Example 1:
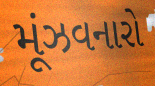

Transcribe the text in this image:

મૂંઝવનારો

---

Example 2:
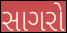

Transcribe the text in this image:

સાગરો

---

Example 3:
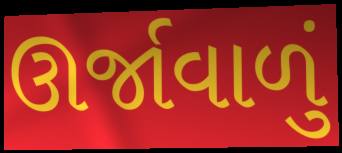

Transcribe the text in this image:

ઊર્જાવાળું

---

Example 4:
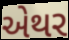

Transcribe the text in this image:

એથર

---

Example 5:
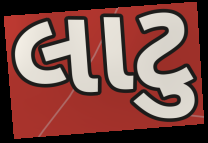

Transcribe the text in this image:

લાટુ